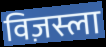
विज़स्ला